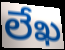
లేఖ